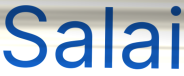
Salai